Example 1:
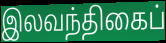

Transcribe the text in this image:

இலவந்திகைப்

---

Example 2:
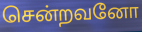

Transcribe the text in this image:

சென்றவனோ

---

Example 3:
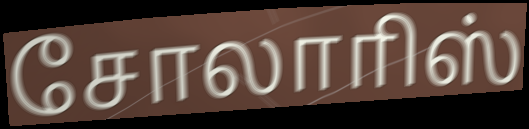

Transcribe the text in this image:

சோலாரிஸ்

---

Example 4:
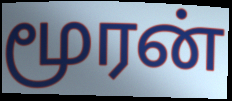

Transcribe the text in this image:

மூரன்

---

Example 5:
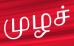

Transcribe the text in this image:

முழச்